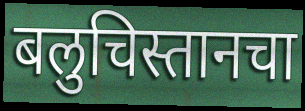
बलुचिस्तानचा